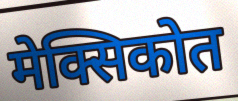
मेक्सिकोत